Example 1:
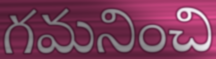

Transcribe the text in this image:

గమనించి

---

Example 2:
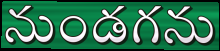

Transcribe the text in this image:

నుండగను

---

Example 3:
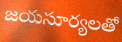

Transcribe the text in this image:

జయసూర్యలతో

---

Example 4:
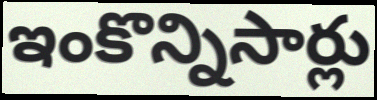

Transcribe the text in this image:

ఇంకొన్నిసార్లు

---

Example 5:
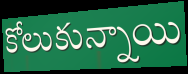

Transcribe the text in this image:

కోలుకున్నాయి